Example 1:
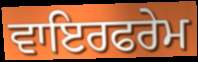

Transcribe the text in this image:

ਵਾਇਰਫਰੇਮ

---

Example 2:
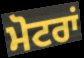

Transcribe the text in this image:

ਮੋਟਰਾਂ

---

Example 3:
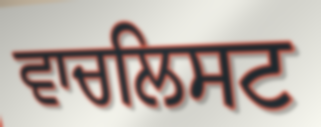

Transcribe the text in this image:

ਵਾਚਲਿਸਟ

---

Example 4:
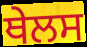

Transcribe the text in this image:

ਥੇਲਸ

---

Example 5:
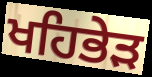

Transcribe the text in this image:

ਖਹਿਭੇੜ